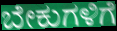
ಬೇಕುಗಳಿಗೆ